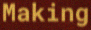
Making